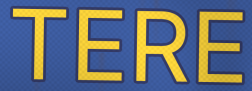
TERE